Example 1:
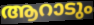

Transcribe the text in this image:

ആറാടും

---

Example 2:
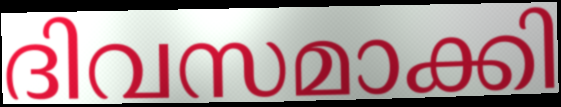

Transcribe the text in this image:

ദിവസമാക്കി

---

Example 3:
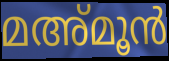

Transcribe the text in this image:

മഅ്മൂൻ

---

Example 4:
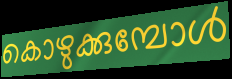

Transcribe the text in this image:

കൊഴുക്കുമ്പോൾ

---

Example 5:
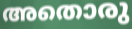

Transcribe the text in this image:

അതൊരു